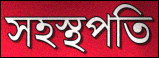
সহস্থপতি